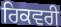
ਰਿਕਵਰੀ